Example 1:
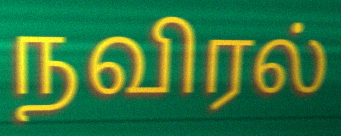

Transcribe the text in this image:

நவிரல்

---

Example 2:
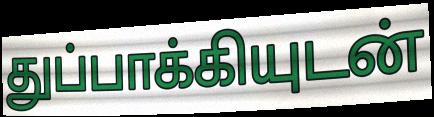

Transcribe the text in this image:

துப்பாக்கியுடன்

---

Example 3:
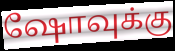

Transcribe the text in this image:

ஷோவுக்கு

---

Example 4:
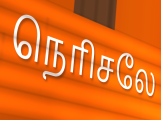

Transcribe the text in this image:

நெரிசலே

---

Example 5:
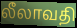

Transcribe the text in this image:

லீலாவதி